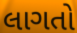
લાગતો